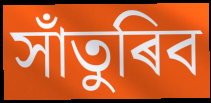
সাঁতুৰিব